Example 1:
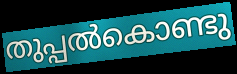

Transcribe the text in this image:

തുപ്പൽകൊണ്ടു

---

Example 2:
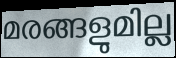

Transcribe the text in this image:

മരങ്ങളുമില്ല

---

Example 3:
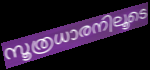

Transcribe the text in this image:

സൂത്രധാരനിലൂടെ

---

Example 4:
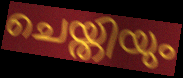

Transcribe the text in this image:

ചെയ്തിയും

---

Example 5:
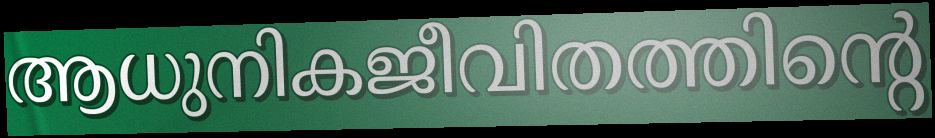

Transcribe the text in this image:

ആധുനികജീവിതത്തിന്റെ